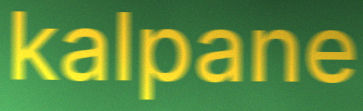
kalpane